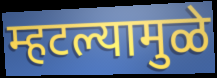
म्हटल्यामुळे